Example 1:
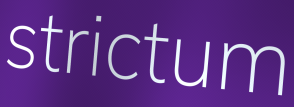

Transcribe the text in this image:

strictum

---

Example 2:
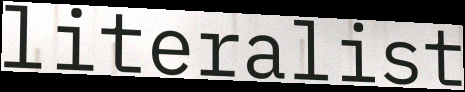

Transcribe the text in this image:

literalist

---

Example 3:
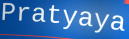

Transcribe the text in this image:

Pratyaya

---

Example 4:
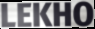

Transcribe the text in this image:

LEKHO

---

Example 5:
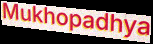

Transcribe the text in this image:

Mukhopadhya